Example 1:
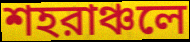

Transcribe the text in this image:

শহরাঞ্চলে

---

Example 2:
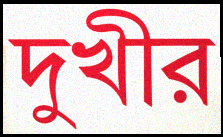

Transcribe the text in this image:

দুখীর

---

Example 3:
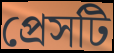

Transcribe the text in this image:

প্রেসটি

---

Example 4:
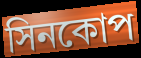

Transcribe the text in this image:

সিনকোপ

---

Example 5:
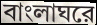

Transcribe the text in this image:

বাংলাঘরে